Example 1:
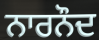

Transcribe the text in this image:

ਨਾਰਨੌਦ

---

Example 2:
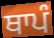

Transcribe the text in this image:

ਥਾਪੰ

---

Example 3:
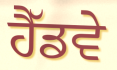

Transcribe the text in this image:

ਹੈੱਡਵੇ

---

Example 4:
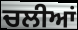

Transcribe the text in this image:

ਚਲੀਆਂ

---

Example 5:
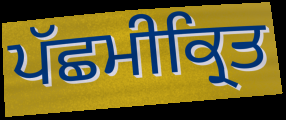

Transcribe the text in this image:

ਪੱਛਮੀਕ੍ਰਿਤ